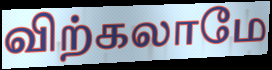
விற்கலாமே